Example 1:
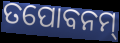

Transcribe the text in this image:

ତପୋବନମ୍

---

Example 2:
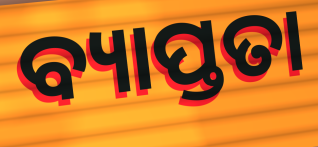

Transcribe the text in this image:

ବ୍ୟାପ୍ତତା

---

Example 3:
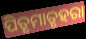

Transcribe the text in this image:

ପିତୃମାତୃହରା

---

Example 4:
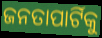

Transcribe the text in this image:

ଜନତାପାର୍ଟିକୁ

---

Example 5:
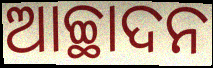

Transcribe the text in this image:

ଆଚ୍ଛାଦନ